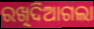
ରଖିଦିଆଗଲା